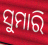
ସୁମାରି